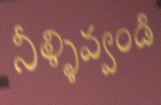
నీళ్ళివ్వండి